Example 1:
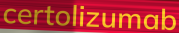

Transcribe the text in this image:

certolizumab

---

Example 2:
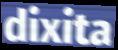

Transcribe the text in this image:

dixita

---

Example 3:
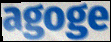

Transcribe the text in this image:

agoge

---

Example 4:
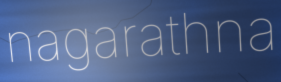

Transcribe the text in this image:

nagarathna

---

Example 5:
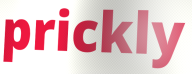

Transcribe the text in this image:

prickly